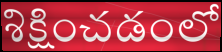
శిక్షించడంలో